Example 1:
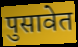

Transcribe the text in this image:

पुसावेत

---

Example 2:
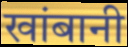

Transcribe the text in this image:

खांबानी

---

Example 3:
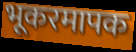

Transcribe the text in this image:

भूकरमापक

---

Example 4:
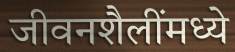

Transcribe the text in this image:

जीवनशैलींमध्ये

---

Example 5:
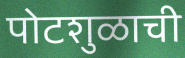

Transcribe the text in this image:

पोटशुळाची